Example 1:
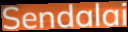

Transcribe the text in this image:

Sendalai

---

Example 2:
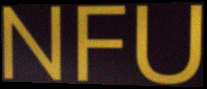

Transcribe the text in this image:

NFU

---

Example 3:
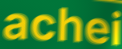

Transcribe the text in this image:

achei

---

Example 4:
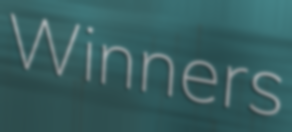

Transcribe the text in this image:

Winners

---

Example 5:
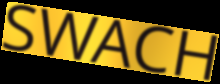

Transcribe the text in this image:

SWACH